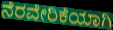
ನೆರವೇರಿಕೆಯಾಗಿ